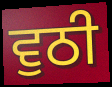
ਵੁਠੀ